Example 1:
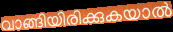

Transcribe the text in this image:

വാങ്ങിയിരിക്കുകയാൽ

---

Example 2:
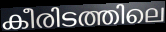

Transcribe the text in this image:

കീരിടത്തിലെ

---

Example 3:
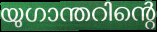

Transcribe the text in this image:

യുഗാന്തറിന്റെ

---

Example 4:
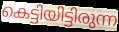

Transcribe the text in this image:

കെട്ടിയിട്ടിരുന്ന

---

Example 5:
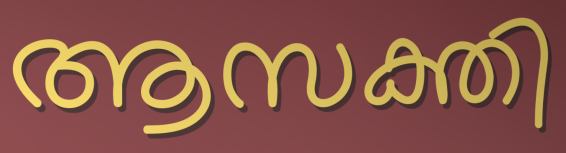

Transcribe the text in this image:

ആസക്തി